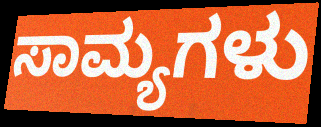
ಸಾಮ್ಯಗಳು